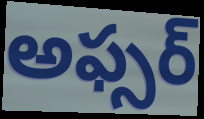
అఫ్సర్